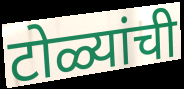
टोळ्यांची